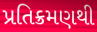
પ્રતિક્રમણથી